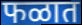
फळात